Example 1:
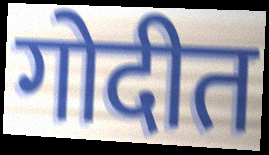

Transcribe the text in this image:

गोदीत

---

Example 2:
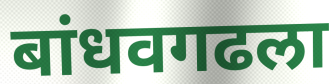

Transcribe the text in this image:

बांधवगढला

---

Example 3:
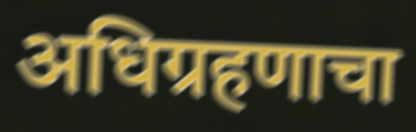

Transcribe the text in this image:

अधिग्रहणाचा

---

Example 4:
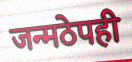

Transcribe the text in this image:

जन्मठेपही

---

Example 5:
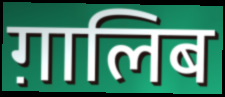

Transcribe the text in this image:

ग़ालिब